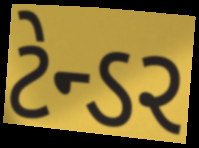
ટેન્ડર